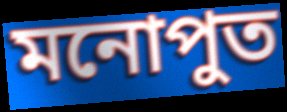
মনোপুত